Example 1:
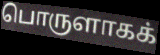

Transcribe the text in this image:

பொருளாகக்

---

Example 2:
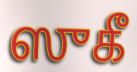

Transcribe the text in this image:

ஸுகீ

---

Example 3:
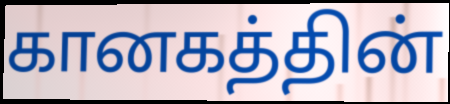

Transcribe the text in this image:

கானகத்தின்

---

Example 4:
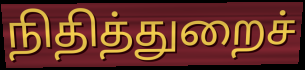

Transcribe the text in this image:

நிதித்துறைச்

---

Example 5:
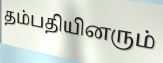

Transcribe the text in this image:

தம்பதியினரும்